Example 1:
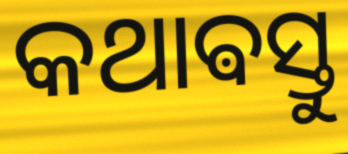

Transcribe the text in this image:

କଥାଵସ୍ତୁ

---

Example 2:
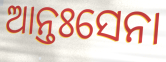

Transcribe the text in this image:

ଆନ୍ତଃସେନା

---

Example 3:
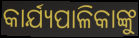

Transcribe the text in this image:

କାର୍ଯ୍ୟପାଳିକାଙ୍କୁ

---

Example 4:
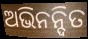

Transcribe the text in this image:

ଅଭିନନ୍ଦିତ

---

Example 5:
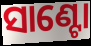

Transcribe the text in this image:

ସାଣ୍ଟୋ